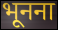
भूनना